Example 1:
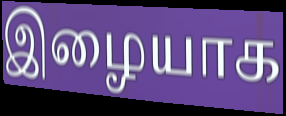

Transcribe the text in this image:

இழையாக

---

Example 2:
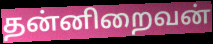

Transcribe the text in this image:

தன்னிறைவன்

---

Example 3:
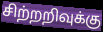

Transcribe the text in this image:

சிற்றறிவுக்கு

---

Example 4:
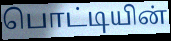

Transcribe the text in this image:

பொட்டியின்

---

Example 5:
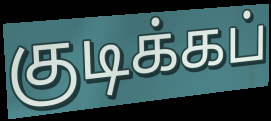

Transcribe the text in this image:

குடிக்கப்